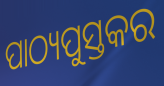
ପାଠ୍ୟପୁସ୍ତକର